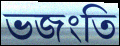
ভজংতি